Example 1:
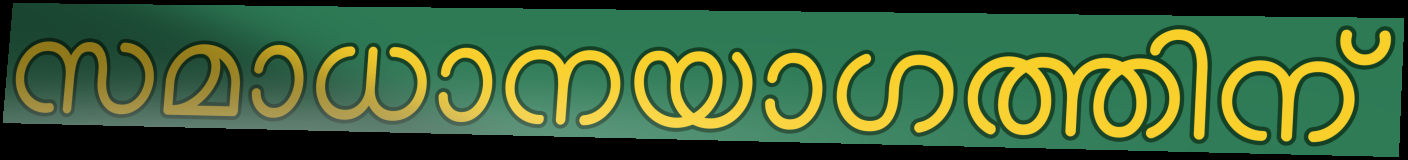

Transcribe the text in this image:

സമാധാനയാഗത്തിന്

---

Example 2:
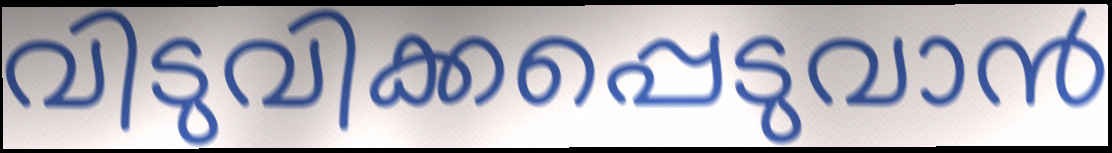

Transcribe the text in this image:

വിടുവിക്കപ്പെടുവാൻ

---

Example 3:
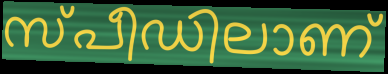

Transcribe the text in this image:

സ്പീഡിലാണ്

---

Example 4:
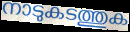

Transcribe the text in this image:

നാടുകടത്തുക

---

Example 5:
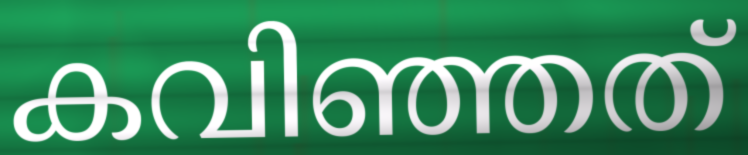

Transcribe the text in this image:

കവിഞ്ഞത്